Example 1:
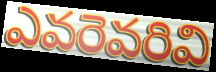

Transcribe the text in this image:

ఎవరెవరివి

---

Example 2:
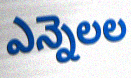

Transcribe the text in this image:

ఎన్నెలల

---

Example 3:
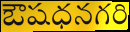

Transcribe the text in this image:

ఔషధనగరి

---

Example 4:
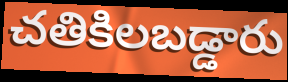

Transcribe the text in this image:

చతికిలబడ్డారు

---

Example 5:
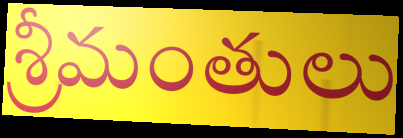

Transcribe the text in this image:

శ్రీమంతులు